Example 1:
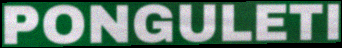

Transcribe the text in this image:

PONGULETI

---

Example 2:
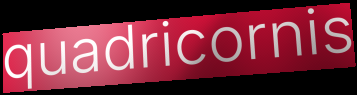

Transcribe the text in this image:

quadricornis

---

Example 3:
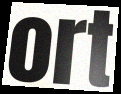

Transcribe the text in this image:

ort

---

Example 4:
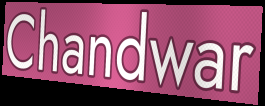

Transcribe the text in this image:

Chandwar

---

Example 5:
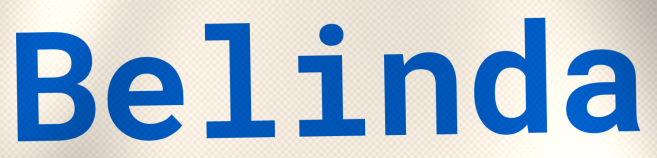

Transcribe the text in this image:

Belinda